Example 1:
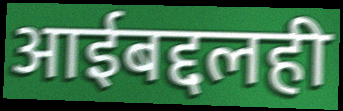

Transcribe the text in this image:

आईबद्दलही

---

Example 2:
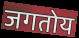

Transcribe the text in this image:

जगतोय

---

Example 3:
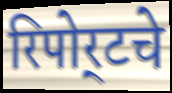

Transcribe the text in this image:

रिपोर्टचे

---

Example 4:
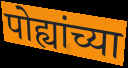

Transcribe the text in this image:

पोह्यांच्या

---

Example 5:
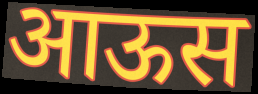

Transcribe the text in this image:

आऊस